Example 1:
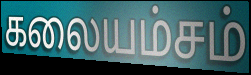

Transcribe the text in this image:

கலையம்சம்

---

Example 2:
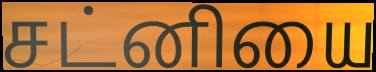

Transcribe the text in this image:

சட்னியை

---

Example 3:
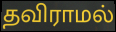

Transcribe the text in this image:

தவிராமல்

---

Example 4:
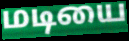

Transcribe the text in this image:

மடியை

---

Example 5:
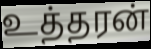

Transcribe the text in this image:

உத்தரன்